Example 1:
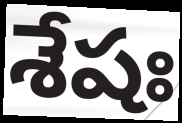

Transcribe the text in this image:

శేషః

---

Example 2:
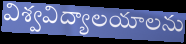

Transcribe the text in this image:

విశ్వవిద్యాలయాలను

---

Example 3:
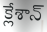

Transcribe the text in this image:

క్లేశాన్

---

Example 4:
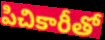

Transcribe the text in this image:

పిచికారీతో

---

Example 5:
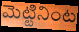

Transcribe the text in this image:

మెట్టినింట